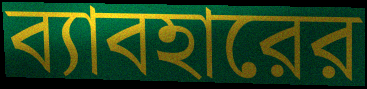
ব্যাবহারের